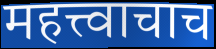
महत्त्वाचाच